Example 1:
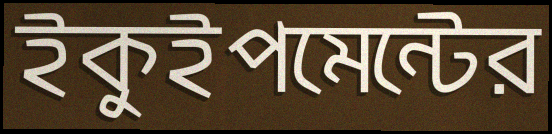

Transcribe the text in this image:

ইকুইপমেন্টের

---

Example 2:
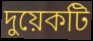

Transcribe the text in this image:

দুয়েকটি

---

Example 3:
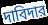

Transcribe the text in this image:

দাবিদার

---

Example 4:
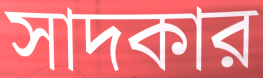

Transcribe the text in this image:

সাদকার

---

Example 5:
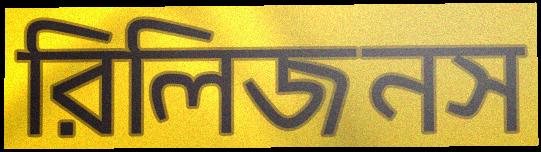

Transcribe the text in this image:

রিলিজনস